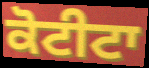
ਕੋਟੀਟਾ